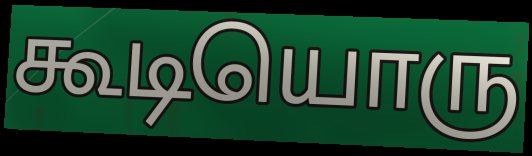
கூடியொரு